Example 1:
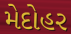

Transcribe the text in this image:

મેદોહર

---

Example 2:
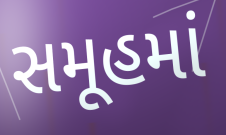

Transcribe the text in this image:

સમૂહમાં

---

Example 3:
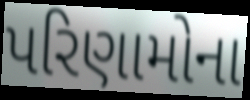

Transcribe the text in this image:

પરિણામોના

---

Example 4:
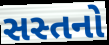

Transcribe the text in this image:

સસ્તનો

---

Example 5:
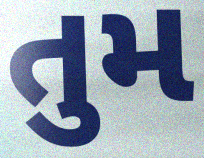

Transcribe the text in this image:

તુમ